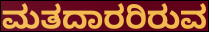
ಮತದಾರರಿರುವ